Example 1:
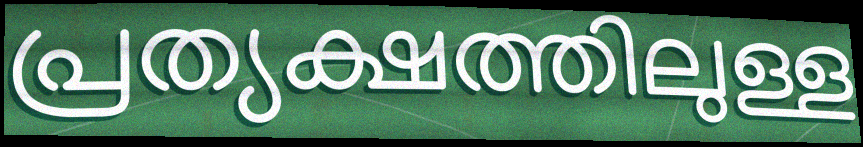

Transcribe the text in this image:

പ്രത്യക്ഷത്തിലുള്ള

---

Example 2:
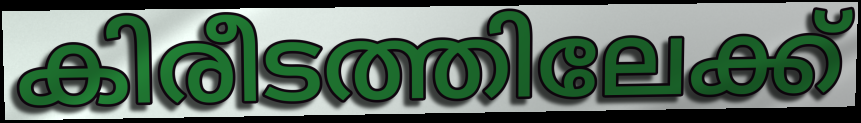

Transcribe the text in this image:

കിരീടത്തിലേക്ക്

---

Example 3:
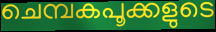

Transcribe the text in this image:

ചെമ്പകപൂക്കളുടെ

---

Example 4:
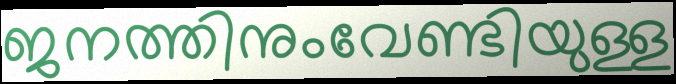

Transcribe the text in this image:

ജനത്തിനുംവേണ്ടിയുള്ള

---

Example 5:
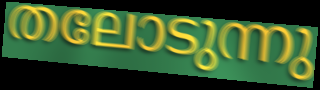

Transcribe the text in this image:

തലോടുന്നു